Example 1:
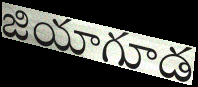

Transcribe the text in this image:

జియాగూడ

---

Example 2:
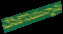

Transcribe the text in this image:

చేసికొనియున్నాను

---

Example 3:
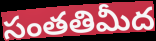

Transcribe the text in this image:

సంతతిమీద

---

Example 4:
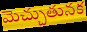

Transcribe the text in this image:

మెచ్చుతునక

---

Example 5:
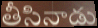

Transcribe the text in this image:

తీసినాడు